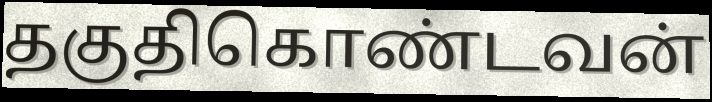
தகுதிகொண்டவன்